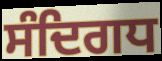
ਸੰਦਿਗਧ